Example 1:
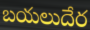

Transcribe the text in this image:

బయలుదేర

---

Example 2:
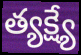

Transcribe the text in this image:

త్యక్ష్యే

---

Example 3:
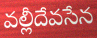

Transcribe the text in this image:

వల్లీదేవసేన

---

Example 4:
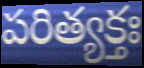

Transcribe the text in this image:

పరిత్యక్తః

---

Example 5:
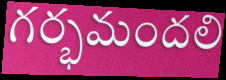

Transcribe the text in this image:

గర్భమందలి